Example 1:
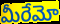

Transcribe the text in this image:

మీరేమో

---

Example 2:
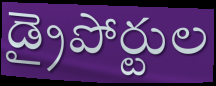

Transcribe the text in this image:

డ్రైపోర్టుల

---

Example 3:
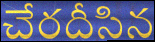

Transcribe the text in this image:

చేరదీసిన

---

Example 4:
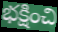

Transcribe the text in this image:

భక్షించి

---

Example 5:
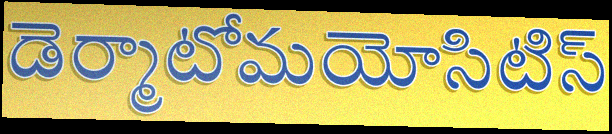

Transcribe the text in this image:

డెర్మాటోమయోసిటిస్